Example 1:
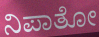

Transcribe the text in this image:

ನಿಪಾತೋ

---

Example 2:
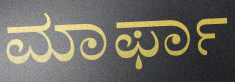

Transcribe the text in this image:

ಮಾರ್ಫಾ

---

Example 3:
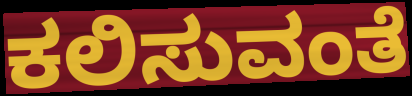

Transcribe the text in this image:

ಕಲಿಸುವಂತೆ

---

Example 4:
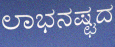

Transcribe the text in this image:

ಲಾಭನಷ್ಟದ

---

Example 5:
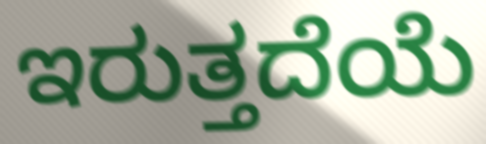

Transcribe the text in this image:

ಇರುತ್ತದೆಯೆ